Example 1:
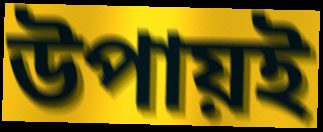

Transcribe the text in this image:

উপায়ই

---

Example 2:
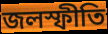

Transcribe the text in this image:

জলস্ফীতি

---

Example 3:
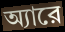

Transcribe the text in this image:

অ্যারে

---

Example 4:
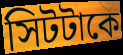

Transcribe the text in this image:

সিটটাকে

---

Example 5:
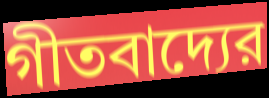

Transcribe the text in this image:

গীতবাদ্যের